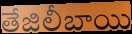
తేజిలీబాయి